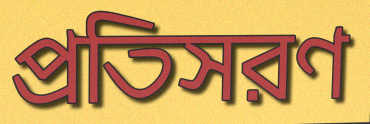
প্রতিসরণ